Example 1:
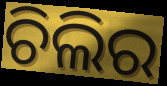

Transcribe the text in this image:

ଚିଲିର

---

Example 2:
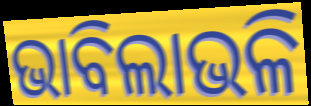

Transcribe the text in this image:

ଭାବିଲାଭଳି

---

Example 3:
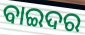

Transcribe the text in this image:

ବାଇଦର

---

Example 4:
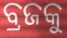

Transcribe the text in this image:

ବ୍ରଜକୁ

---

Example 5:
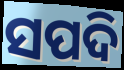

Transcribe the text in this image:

ସପଦି